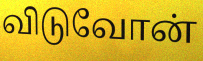
விடுவோன்